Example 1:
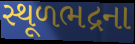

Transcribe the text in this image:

સ્થૂળભદ્રના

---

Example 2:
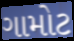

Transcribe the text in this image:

ગામોટ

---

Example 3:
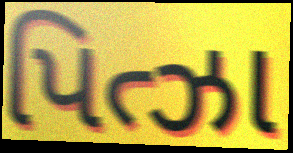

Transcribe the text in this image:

પિત્ઝા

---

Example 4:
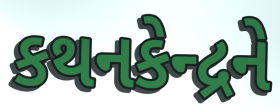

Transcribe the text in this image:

કથનકેન્દ્રને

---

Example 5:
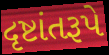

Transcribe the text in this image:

દૃષ્ટાંતરૂપે